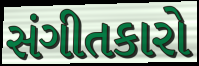
સંગીતકારો